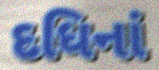
દધિનાં